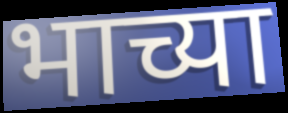
भाच्या